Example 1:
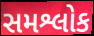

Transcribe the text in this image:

સમશ્લોક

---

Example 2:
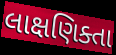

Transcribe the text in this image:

લાક્ષણિક્તા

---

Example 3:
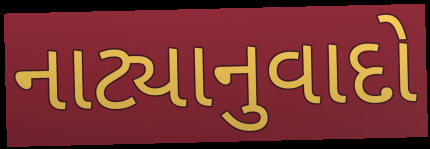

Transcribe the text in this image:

નાટ્યાનુવાદો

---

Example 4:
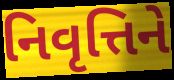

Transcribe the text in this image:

નિવૃત્તિને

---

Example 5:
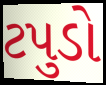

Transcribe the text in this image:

ટપુડો